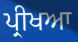
ਪ੍ਰੀਖਆ